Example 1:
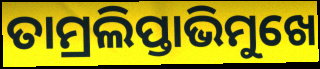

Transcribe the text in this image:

ତାମ୍ରଲିପ୍ତାଭିମୁଖେ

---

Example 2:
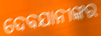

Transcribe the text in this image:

ଦେବଯାନୀଙ୍କର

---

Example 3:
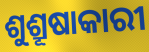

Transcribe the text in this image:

ଶୁଶ୍ରୂଷାକାରୀ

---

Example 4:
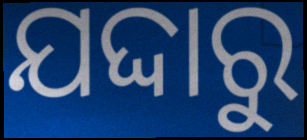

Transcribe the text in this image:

ଯଦ୍ଦାରୁ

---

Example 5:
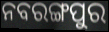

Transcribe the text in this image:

ନବରଙ୍ଗପୁର